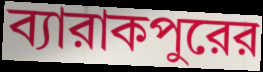
ব্যারাকপুরের